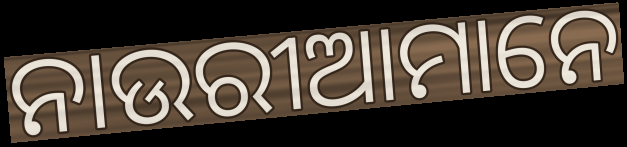
ନାଉରୀଆମାନେ